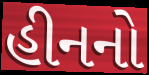
હીનનો